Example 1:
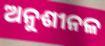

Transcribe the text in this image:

ଅନୁଶୀନଳ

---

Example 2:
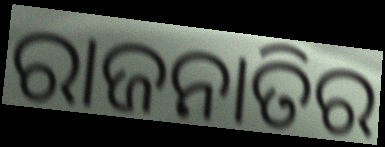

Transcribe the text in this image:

ରାଜନାତିର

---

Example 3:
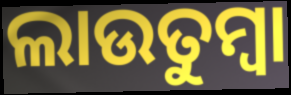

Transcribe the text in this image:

ଲାଉତୁମ୍ବା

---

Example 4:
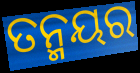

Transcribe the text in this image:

ତନ୍ମୟର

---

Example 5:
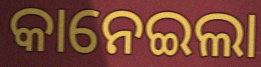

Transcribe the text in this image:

କାନେଇଲା